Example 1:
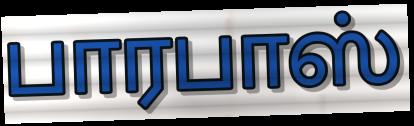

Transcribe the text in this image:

பாரபாஸ்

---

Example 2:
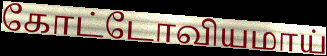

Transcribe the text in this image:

கோட்டோவியமாய்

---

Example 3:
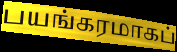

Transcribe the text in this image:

பயங்கரமாகப்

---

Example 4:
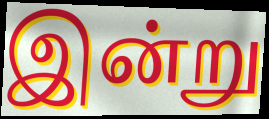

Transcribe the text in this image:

இன்று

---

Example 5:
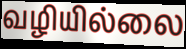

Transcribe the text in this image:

வழியில்லை